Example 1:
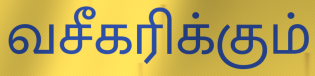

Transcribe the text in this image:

வசீகரிக்கும்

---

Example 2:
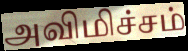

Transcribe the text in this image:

அவிமிச்சம்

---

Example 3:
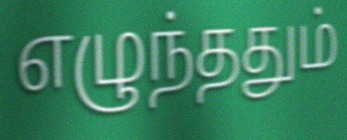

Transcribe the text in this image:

எழுந்ததும்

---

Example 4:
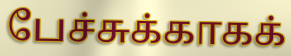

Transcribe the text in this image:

பேச்சுக்காகக்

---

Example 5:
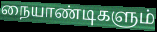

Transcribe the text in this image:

நையாண்டிகளும்